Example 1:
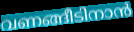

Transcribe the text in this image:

വണങ്ങീടിനാൻ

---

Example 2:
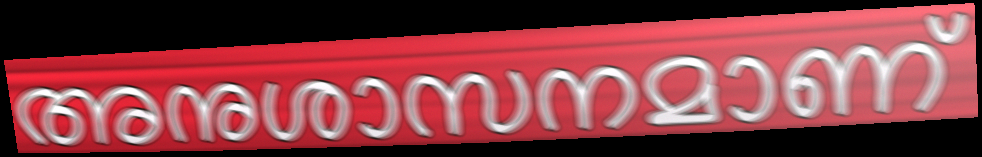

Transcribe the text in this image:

അനുശാസനമാണ്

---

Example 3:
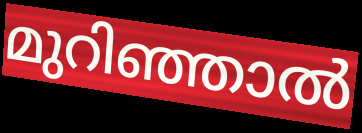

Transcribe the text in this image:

മുറിഞ്ഞാൽ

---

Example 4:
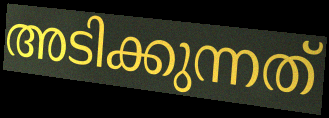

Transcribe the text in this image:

അടിക്കുന്നത്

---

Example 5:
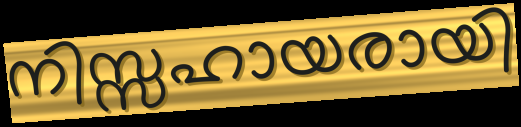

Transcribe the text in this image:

നിസ്സഹായരായി